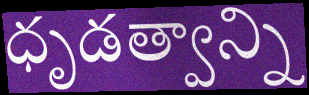
ధృడత్వాన్ని